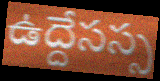
ఉద్దేసస్స